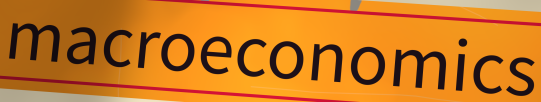
macroeconomics